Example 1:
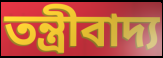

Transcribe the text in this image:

তন্ত্ৰীবাদ্য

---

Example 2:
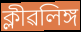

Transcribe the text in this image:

ক্লীৱলিঙ্গ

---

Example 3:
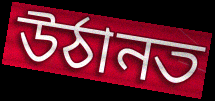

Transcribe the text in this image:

উঠানত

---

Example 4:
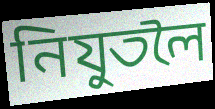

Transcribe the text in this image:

নিযুতলৈ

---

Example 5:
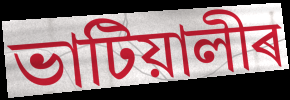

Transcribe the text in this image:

ভাটিয়ালীৰ